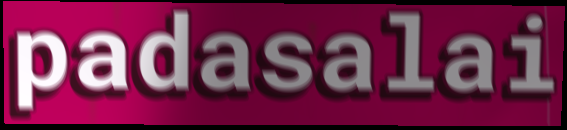
padasalai